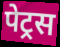
पेट्रस